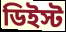
ডিইস্ট